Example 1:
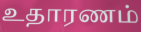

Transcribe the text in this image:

உதாரணம்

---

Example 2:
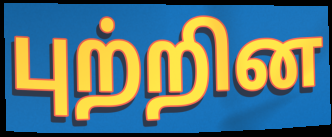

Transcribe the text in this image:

புற்றின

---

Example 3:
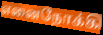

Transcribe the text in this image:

எனைநோக்கி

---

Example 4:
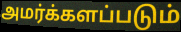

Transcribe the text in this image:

அமர்க்களப்படும்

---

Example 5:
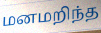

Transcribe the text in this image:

மனமறிந்த